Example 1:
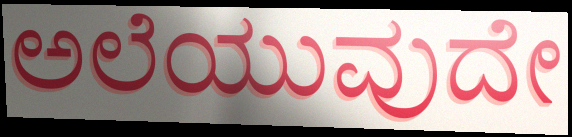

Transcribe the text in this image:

ಅಲೆಯುವುದೇ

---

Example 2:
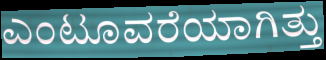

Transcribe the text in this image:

ಎಂಟೂವರೆಯಾಗಿತ್ತು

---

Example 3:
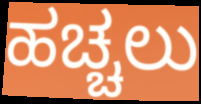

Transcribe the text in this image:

ಹಚ್ಚಲು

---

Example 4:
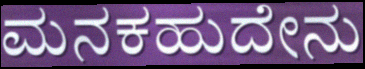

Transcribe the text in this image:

ಮನಕಹುದೇನು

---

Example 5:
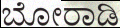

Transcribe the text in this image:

ಬೋರಾಡಿ